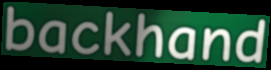
backhand